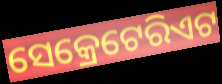
ସେକ୍ରେଟେରିଏଟ